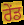
ਰੇਂਡ